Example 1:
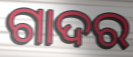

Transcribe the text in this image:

ଗାଦର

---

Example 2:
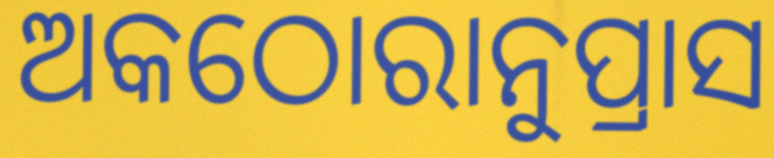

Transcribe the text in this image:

ଅକଠୋରାନୁପ୍ରାସ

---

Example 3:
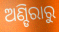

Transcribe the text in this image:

ଅଣ୍ଡିରାରୁ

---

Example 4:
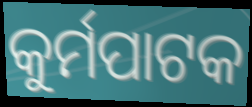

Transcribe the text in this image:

କୁର୍ମପାଟକ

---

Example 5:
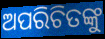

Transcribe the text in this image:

ଅପରିଚିତଙ୍କୁ